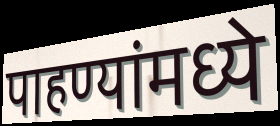
पाहण्यांमध्ये